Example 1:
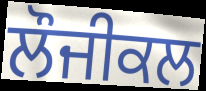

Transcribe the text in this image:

ਲੌਜੀਕਲ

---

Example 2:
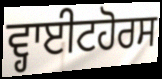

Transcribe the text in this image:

ਵ੍ਹਾਈਟਹੋਰਸ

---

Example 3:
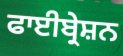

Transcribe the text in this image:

ਫਾਈਬ੍ਰੇਸ਼ਨ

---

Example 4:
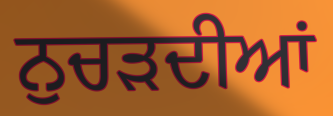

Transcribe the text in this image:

ਨੁਚੜਦੀਆਂ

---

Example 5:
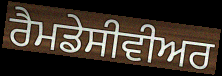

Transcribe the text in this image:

ਰੈਮਡੇਸੀਵੀਅਰ